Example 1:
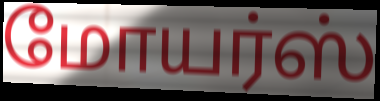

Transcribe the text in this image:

மோயர்ஸ்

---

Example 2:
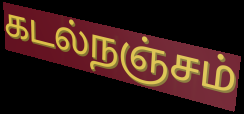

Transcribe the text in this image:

கடல்நஞ்சம்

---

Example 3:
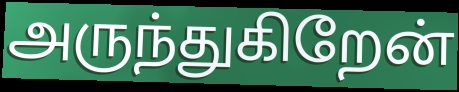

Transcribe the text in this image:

அருந்துகிறேன்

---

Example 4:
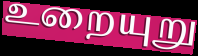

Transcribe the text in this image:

உறையுறு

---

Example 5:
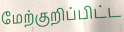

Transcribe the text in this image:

மேற்குறிப்பிட்ட